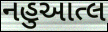
નહુઆત્લ